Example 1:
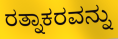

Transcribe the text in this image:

ರತ್ನಾಕರವನ್ನು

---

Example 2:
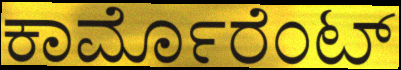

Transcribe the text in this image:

ಕಾರ್ಮೊರೆಂಟ್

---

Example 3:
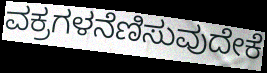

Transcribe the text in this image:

ವಕ್ರಗಳನೆಣಿಸುವುದೇಕೆ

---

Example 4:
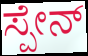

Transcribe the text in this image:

ಸ್ಪೇನ್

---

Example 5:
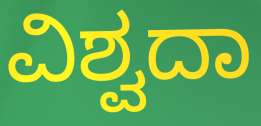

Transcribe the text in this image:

ವಿಶ್ವದಾ